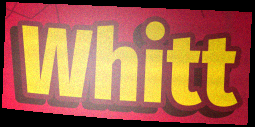
Whitt